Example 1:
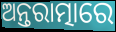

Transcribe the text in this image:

ଅନ୍ତରାତ୍ମାରେ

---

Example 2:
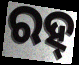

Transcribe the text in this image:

ରହ୍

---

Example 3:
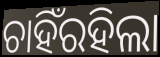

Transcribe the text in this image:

ଚାହିଁରହିଲା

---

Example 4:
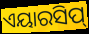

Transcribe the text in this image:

ଏୟାରସିପ୍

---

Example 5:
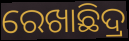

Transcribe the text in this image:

ରେଖାଛିଦ୍ର